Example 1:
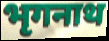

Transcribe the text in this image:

भृगनाथ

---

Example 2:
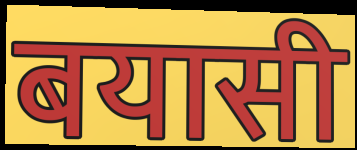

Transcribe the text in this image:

बयासी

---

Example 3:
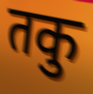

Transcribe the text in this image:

तकु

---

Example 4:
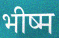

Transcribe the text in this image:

भीष्म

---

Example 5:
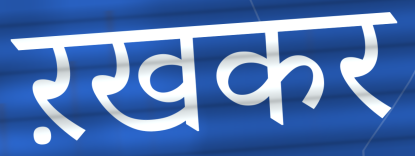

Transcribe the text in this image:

ऱखकर